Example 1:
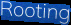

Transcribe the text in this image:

Rooting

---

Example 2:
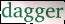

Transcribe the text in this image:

dagger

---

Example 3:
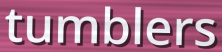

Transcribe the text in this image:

tumblers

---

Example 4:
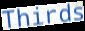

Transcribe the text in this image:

Thirds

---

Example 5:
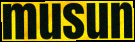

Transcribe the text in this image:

musun